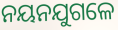
ନୟନଯୁଗଳେ